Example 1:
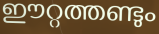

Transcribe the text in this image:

ഈറ്റത്തണ്ടും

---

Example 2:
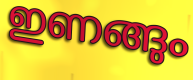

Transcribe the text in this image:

ഇണങ്ങും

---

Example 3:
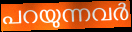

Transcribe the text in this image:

പറയുന്നവർ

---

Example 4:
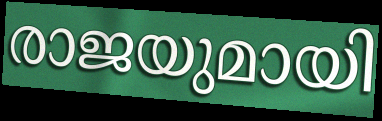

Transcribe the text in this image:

രാജയുമായി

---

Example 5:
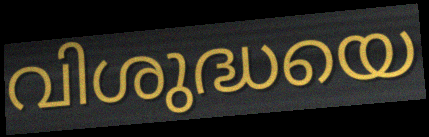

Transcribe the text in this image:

വിശുദ്ധയെ